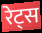
रेट्स